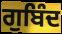
ਗੁਬਿੰਦ